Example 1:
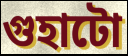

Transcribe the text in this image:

গুহাটো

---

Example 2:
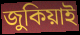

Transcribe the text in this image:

জুকিয়াই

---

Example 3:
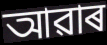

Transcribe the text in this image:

আৱাৰ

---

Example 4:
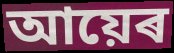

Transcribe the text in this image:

আয়েৰ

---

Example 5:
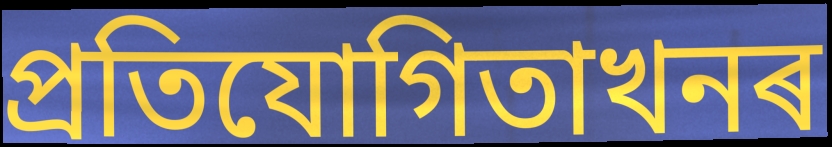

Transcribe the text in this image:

প্ৰতিযোগিতাখনৰ